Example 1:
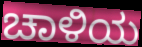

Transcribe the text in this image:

ಚಾಳಿಯ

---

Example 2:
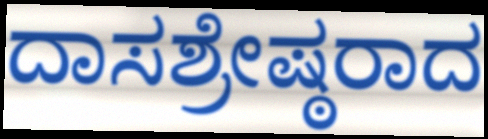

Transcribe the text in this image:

ದಾಸಶ್ರೇಷ್ಠರಾದ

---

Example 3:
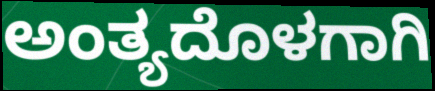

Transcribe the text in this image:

ಅಂತ್ಯದೊಳಗಾಗಿ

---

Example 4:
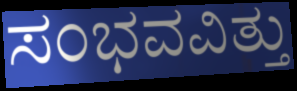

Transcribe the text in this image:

ಸಂಭವವಿತ್ತು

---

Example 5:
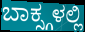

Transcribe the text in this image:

ಬಾಕ್ಸ್ಗಳಲ್ಲಿ